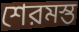
শেরমস্ত